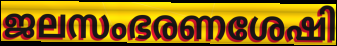
ജലസംഭരണശേഷി